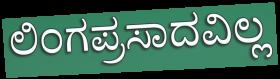
ಲಿಂಗಪ್ರಸಾದವಿಲ್ಲ